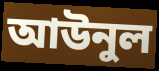
আউনুল